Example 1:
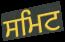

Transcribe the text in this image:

ਸਮਿਟ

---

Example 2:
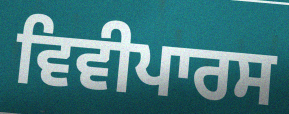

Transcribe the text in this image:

ਵਿਵੀਪਾਰਸ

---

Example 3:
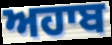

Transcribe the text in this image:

ਅਹਾਬ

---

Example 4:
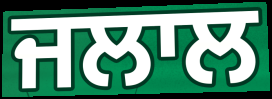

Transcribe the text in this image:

ਜਲਾਲ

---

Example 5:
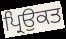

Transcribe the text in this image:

ਪ੍ਰਿਉਕਤ